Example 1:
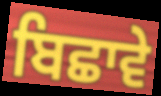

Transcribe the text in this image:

ਬਿਛਾਵੇ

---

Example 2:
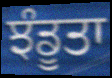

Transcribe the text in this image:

ਝੰਡੂਤਾ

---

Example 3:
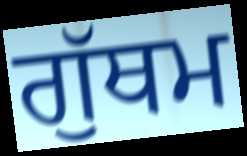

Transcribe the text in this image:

ਗੁੱਥਮ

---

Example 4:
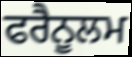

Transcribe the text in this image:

ਫਰੈਨੂਲਮ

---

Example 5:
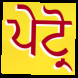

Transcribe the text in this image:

ਪੇਟ੍ਰੋ